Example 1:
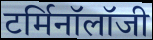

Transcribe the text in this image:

टर्मिनॉलॉजी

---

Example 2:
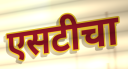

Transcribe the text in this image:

एसटीचा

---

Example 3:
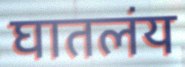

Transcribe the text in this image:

घातलंय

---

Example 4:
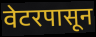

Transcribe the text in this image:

वेटरपासून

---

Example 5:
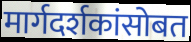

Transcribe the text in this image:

मार्गदर्शकांसोबत